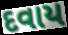
દવાય